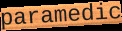
paramedic